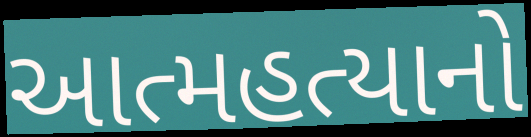
આત્મહત્યાનો